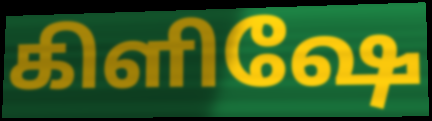
கிளிஷே